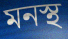
মনস্থ